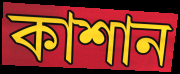
কাশান